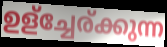
ഉള്ച്ചേര്ക്കുന്ന